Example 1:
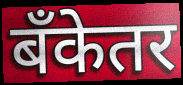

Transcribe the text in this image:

बँकेतर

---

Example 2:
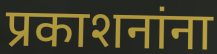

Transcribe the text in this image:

प्रकाशनांना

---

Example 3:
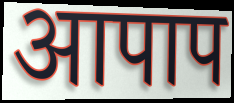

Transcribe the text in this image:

आपाप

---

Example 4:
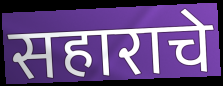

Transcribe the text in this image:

सहाराचे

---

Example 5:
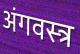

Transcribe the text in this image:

अंगवस्त्र